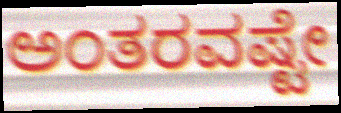
ಅಂತರವಷ್ಟೇ